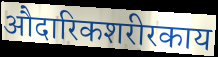
औदारिकशरीरकाय